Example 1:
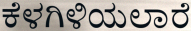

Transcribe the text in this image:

ಕೆಳಗಿಳಿಯಲಾರೆ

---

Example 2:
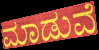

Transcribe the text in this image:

ಮಾಡುವೆ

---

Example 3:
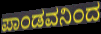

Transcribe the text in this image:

ಪಾಂಡವನಿಂದ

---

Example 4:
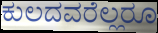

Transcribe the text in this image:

ಕುಲದವರೆಲ್ಲರೂ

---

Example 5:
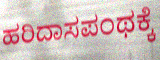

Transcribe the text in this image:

ಹರಿದಾಸಪಂಥಕ್ಕೆ